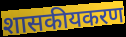
शासकीयकरण